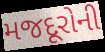
મજદૂરોની